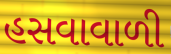
હસવાવાળી